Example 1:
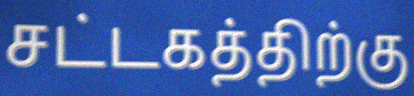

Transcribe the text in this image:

சட்டகத்திற்கு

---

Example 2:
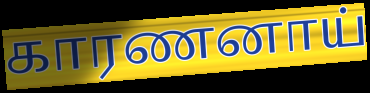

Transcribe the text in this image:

காரணனாய்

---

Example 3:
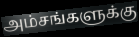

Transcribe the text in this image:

அம்சங்களுக்கு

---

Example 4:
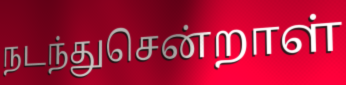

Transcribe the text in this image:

நடந்துசென்றாள்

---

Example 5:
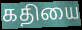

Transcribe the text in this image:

கதியை